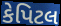
કેપિટલ